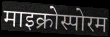
माइक्रोस्पोरम